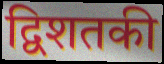
द्विशतकी